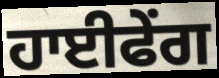
ਹਾਈਫੇਂਗ